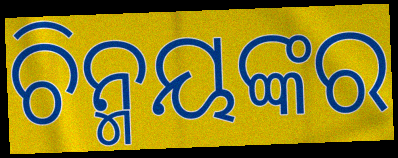
ଚିନ୍ମୟଙ୍କର